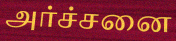
அர்ச்சனை